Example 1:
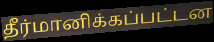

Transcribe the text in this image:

தீர்மானிக்கப்பட்டன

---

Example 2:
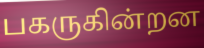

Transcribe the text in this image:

பகருகின்றன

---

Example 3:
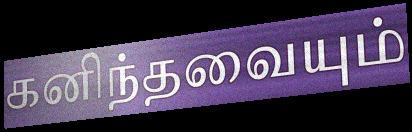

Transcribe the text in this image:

கனிந்தவையும்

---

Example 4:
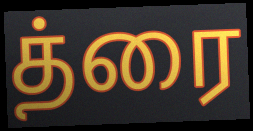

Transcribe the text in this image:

த்ரை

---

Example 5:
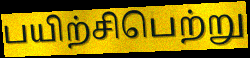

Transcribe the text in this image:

பயிற்சிபெற்று